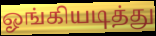
ஓங்கியடித்து